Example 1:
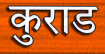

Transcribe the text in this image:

कुराड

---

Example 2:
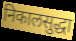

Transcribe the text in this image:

निकालसुद्धा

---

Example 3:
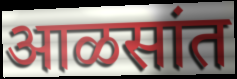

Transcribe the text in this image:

आळसांत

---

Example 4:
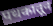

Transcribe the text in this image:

पथकातून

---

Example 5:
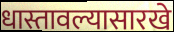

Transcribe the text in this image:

धास्तावल्यासारखे